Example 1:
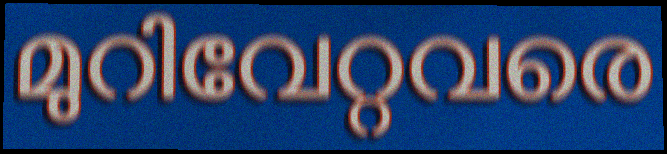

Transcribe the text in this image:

മുറിവേറ്റവരെ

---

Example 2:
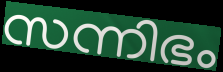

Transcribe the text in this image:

സന്നിഭം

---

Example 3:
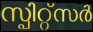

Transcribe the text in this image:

സ്പിറ്റ്സർ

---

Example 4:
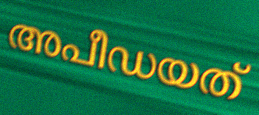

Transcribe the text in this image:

അപീഡയത്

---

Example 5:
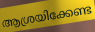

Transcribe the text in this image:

ആശ്രയിക്കേണ്ട